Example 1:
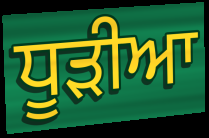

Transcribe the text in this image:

ਧੂੜੀਆ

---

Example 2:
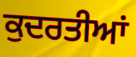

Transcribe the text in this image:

ਕੁਦਰਤੀਆਂ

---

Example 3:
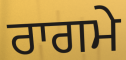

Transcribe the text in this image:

ਰਾਗਮੇ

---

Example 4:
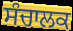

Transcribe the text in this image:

ਸੰਚਾਲਕ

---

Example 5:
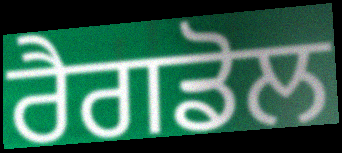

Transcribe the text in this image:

ਰੈਗਡੋਲ